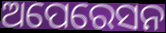
ଅପେରେସନ